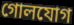
গোলযোগ